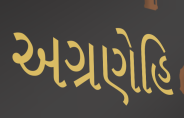
અગ્રણેહિ